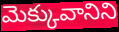
మెక్కువానిని